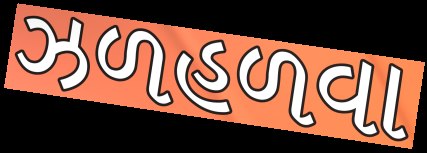
ઝળહળવા